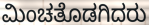
ಮಿಂಚತೊಡಗಿದರು